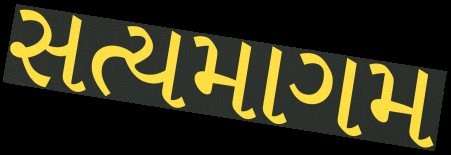
સત્યમાગમ